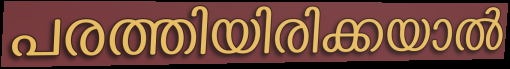
പരത്തിയിരിക്കയാൽ